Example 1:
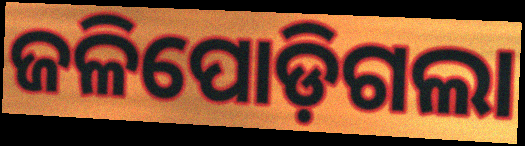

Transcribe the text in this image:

ଜଳିପୋଡ଼ିଗଲା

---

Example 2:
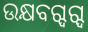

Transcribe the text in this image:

ଉକ୍ଷବଗ୍ଦଗ୍ଦ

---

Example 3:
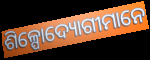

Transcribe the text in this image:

ଶିଳ୍ପୋଦ୍ୟୋଗୀମାନେ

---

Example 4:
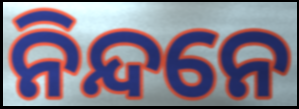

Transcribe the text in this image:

ନିନ୍ଦନେ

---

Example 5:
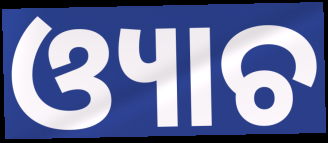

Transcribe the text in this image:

ଓ୍ୟାଚ